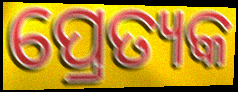
ପ୍ରେତ୍ୟକ